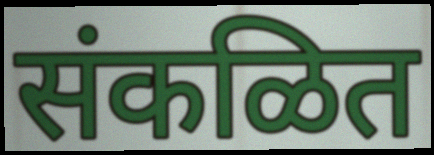
संकळित